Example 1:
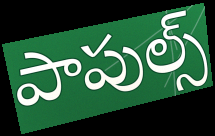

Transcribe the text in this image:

పాపుల్స్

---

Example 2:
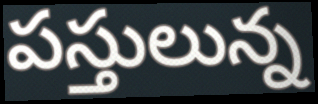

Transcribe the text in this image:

పస్తులున్న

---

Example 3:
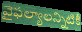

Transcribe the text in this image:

వైఫల్యాలన్నిటికీ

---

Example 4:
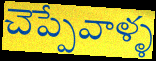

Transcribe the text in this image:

చెప్పేవాళ్ళ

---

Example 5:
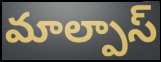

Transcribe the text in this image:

మాల్పాస్